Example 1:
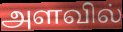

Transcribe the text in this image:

அளவில்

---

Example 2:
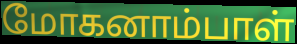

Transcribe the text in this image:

மோகனாம்பாள்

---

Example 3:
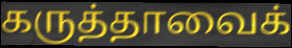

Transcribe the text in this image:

கருத்தாவைக்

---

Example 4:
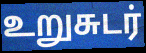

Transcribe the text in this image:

உறுசுடர்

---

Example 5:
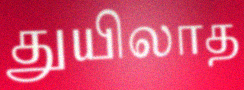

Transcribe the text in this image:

துயிலாத